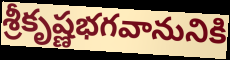
శ్రీకృష్ణభగవానునికి